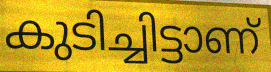
കുടിച്ചിട്ടാണ്